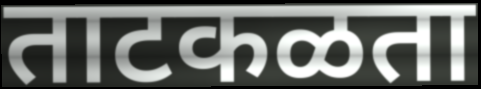
ताटकळता